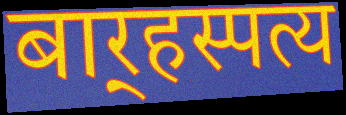
बार्हस्पत्य